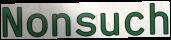
Nonsuch